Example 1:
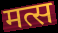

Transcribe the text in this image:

मत्स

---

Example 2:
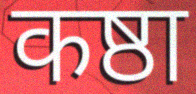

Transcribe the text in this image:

कष्ठा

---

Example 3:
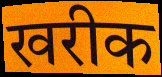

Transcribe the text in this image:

खरीक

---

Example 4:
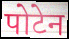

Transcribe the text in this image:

पोटेन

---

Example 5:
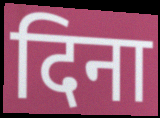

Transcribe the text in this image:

दिना